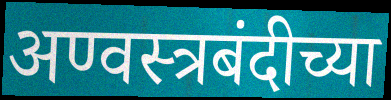
अण्वस्त्रबंदीच्या